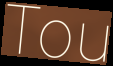
Tou